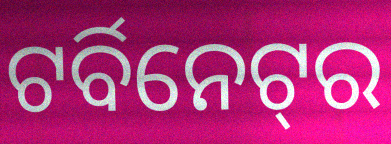
ଟର୍ବିନେଟ୍‌ର